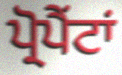
ਪ੍ਰੋਪੈਂਟਾਂ